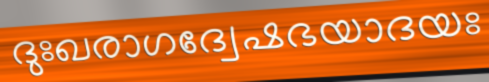
ദുഃഖരാഗദ്വേഷഭയാദയഃ